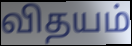
விதயம்